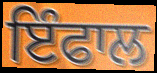
ਇੰਫਾਲ